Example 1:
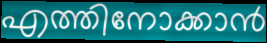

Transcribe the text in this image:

എത്തിനോക്കാൻ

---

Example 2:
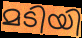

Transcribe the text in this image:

മടിയി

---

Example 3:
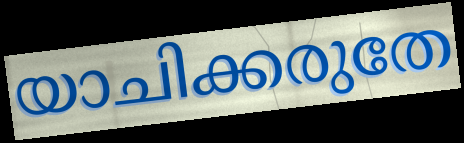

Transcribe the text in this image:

യാചിക്കരുതേ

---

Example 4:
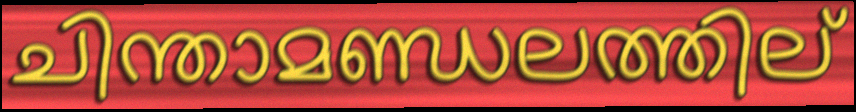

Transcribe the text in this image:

ചിന്താമണ്ഡലത്തില്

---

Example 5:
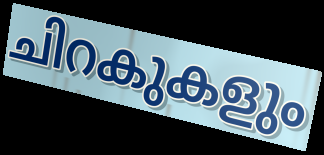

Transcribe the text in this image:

ചിറകുകളും